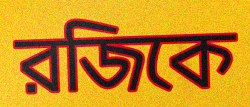
রজিকে